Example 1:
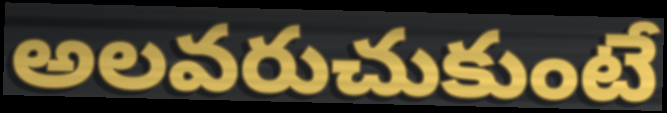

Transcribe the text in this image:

అలవరుచుకుంటే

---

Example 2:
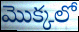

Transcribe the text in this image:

మొక్కలో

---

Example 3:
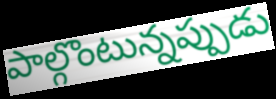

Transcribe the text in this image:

పాల్గొంటున్నప్పుడు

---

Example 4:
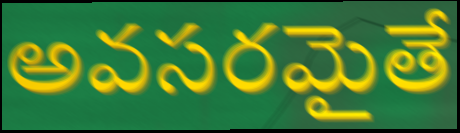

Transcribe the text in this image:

అవసరమైతే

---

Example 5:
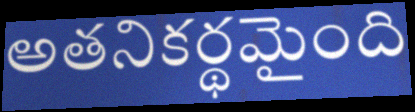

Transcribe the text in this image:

అతనికర్థమైంది